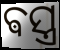
ଵସ୍ତ୍ର